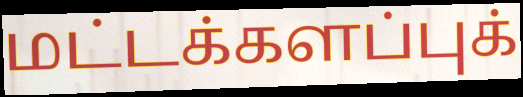
மட்டக்களப்புக்